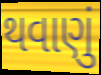
થવાણું